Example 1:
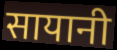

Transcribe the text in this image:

सायानी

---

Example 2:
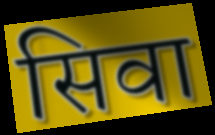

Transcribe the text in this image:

सिवा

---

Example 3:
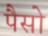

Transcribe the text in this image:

पैसो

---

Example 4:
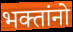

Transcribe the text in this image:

भक्तांनो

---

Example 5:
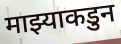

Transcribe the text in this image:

माझ्याकडुन